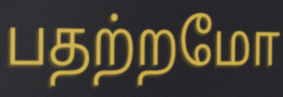
பதற்றமோ